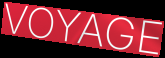
VOYAGE